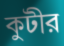
কুটীর